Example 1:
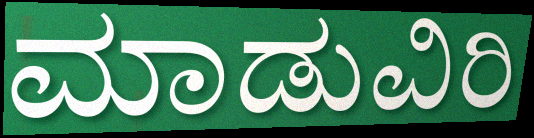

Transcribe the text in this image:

ಮಾಡುವಿರಿ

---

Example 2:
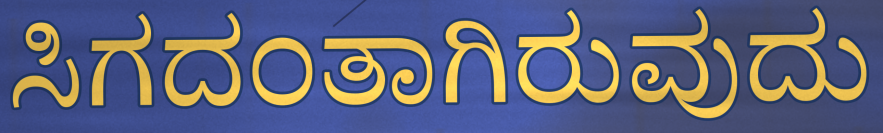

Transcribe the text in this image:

ಸಿಗದಂತಾಗಿರುವುದು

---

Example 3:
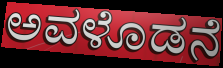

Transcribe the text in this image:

ಅವಳೊಡನೆ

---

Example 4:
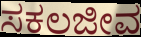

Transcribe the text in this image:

ಸಕಲಜೀವ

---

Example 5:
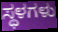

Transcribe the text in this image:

ಸ್ಥಳಗಳು